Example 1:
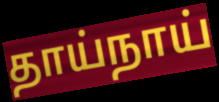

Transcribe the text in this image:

தாய்நாய்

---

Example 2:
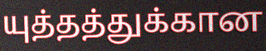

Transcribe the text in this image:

யுத்தத்துக்கான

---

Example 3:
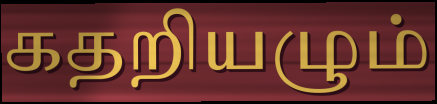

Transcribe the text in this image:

கதறியழும்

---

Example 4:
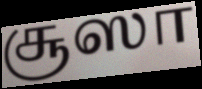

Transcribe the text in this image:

சூஸா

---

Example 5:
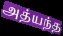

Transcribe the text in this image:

அத்யந்த